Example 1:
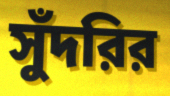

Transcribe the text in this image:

সুঁদরির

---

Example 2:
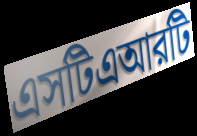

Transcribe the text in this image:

এসটিএআরটি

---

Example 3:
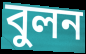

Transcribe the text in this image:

বুলন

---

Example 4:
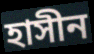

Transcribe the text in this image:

হাসীন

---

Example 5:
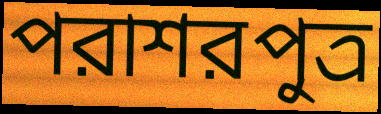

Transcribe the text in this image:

পরাশরপুত্র